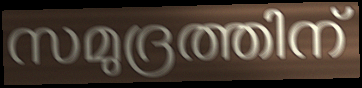
സമുദ്രത്തിന്